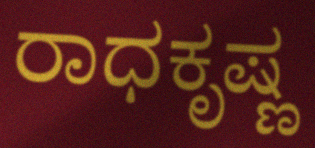
ರಾಧಕೃಷ್ಣ